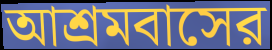
আশ্রমবাসের